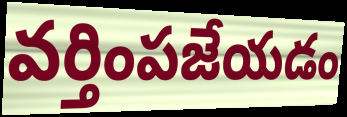
వర్తింపజేయడం